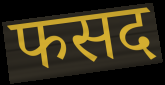
फसद